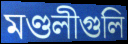
মণ্ডলীগুলি